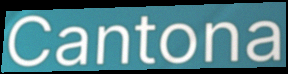
Cantona